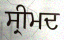
ਸ੍ਰੀਮਦ